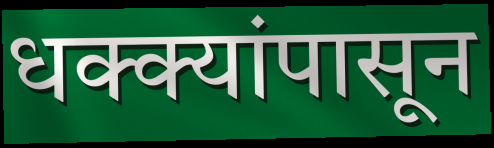
धक्क्यांपासून